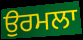
ਉਰਮਲਾ